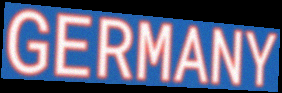
GERMANY